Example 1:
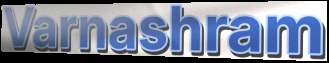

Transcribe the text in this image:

Varnashram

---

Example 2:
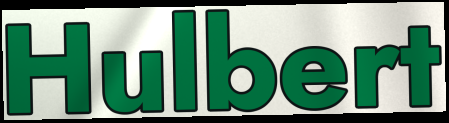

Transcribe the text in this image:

Hulbert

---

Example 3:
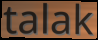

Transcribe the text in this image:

talak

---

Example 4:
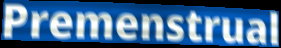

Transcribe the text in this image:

Premenstrual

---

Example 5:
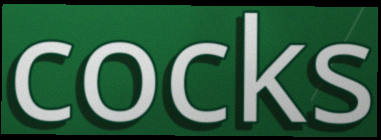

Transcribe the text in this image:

cocks